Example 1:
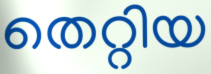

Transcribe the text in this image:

തെറ്റിയ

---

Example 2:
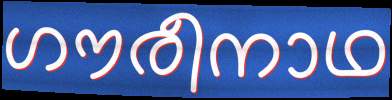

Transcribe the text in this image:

ഗൗരീനാഥ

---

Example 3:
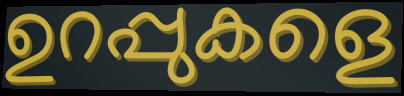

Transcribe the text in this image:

ഉറപ്പുകളെ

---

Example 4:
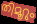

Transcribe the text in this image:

തിമൂറും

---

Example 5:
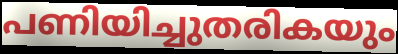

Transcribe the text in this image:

പണിയിച്ചുതരികയും